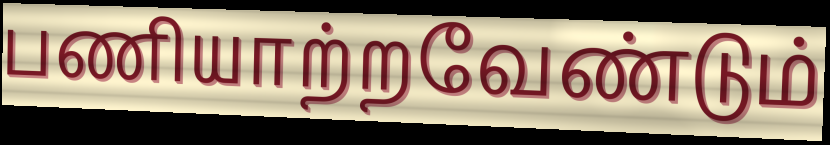
பணியாற்றவேண்டும்